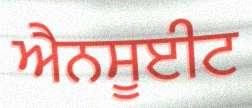
ਐਨਸੂਈਟ